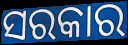
ସରକାର